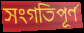
সংগতিপূর্ণ